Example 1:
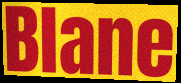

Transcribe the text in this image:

Blane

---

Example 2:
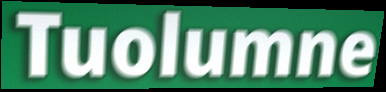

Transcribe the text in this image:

Tuolumne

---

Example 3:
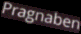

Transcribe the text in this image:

Pragnaben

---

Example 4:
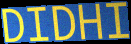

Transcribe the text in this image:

DIDHI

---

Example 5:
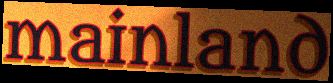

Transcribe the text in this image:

mainland